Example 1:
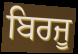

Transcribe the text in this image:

ਬਿਰਜੂ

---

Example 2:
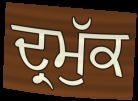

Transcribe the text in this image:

ਦ੍ਰਮੁੱਕ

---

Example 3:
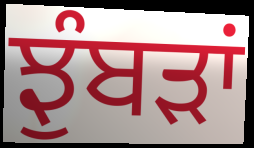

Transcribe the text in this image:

ਝੁੰਬੜਾਂ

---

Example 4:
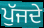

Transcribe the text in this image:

ਪੁੱਜਦੇ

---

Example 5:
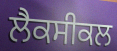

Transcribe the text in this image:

ਲੈਕਸੀਕਲ